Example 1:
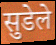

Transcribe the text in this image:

सुडेले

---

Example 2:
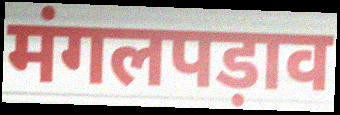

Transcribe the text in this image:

मंगलपड़ाव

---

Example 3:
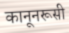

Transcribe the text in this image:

कानूनरूसी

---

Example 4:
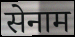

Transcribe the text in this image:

सेनाम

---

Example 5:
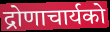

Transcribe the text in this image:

द्रोणाचार्यको